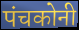
पंचकोनी